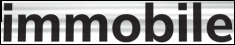
immobile